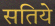
सतिये